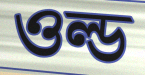
ওল্ড